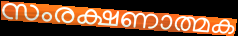
സംരക്ഷണാത്മക